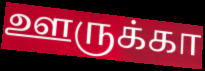
ஊருக்கா